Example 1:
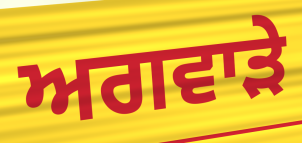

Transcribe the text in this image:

ਅਗਵਾੜੇ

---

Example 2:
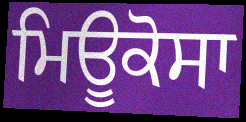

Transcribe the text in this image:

ਮਿਊਕੋਸਾ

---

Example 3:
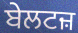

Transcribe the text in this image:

ਬੇਲਟਜ਼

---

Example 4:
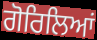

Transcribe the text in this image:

ਗੋਰਿਲਿਆਂ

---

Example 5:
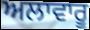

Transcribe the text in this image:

ਅਲਾਵਾਰੂ